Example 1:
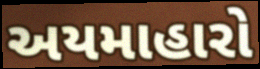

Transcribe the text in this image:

અયમાહારો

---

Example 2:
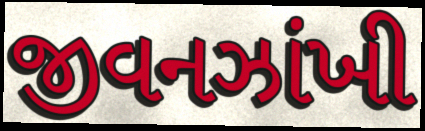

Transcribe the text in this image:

જીવનઝાંખી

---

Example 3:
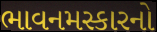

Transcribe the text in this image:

ભાવનમસ્કારનો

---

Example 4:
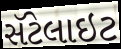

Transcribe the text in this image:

સૅટેલાઇટ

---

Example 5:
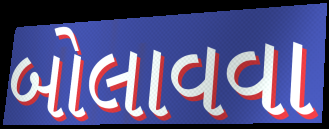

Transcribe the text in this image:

બોલાવવા